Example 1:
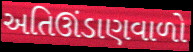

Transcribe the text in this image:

અતિઊંડાણવાળો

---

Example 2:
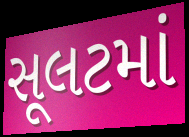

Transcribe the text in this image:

સૂલટમાં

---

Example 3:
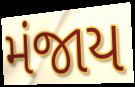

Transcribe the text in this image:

મંજાય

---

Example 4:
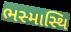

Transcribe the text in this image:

ભસ્માસ્થિ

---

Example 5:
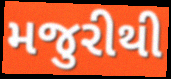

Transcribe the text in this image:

મજુરીથી